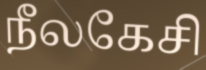
நீலகேசி